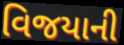
વિજયાની